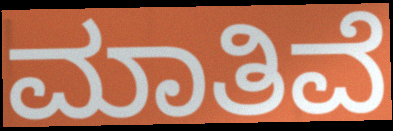
ಮಾತಿವೆ